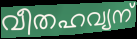
വീതഹവ്യന്